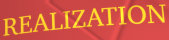
REALIZATION